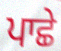
ਪਾਛੇ